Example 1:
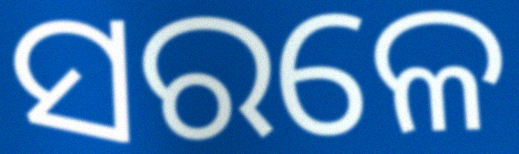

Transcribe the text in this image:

ସରଳେ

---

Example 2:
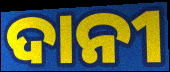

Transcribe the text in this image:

ଦାନୀ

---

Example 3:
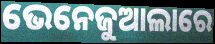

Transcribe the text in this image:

ଭେନେଜୁଆଲାରେ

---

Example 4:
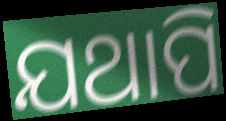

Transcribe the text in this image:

ଯଥାପି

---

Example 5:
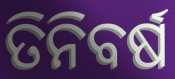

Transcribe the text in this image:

ତିନିବର୍ଷ